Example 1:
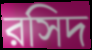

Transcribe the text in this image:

রসিদ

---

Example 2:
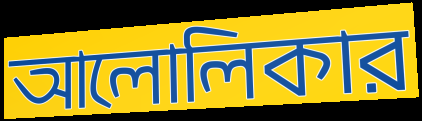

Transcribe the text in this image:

আলোলিকার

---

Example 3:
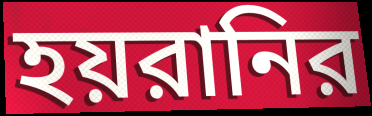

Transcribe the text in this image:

হয়রানির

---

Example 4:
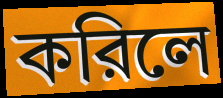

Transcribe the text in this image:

করিলে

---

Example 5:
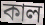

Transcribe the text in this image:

কাল